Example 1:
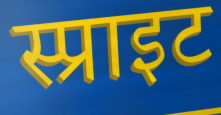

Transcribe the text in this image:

स्प्राइट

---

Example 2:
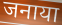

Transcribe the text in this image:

जनाया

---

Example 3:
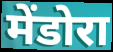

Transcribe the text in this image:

मेंडोरा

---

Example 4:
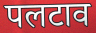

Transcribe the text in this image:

पलटाव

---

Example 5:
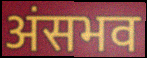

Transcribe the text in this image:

अंसभव